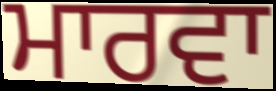
ਮਾਰਵਾ